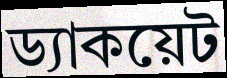
ড্যাকয়েট